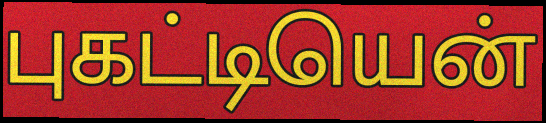
புகட்டியென்